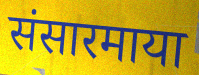
संसारमाया